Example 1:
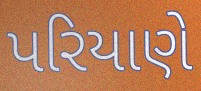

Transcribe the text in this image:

પરિયાણે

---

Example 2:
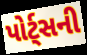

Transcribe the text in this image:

પોર્ટ્સની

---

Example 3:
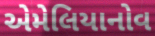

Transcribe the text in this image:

એમેલિયાનોવ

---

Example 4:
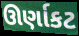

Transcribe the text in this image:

ઊર્ણાકટ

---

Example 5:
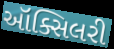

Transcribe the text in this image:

ઑક્સિલરી